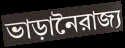
ভাড়ানৈরাজ্য